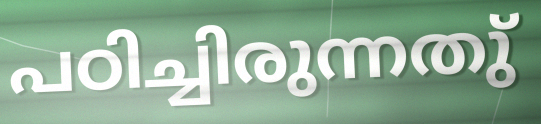
പഠിച്ചിരുന്നതു്